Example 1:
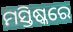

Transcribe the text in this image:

ମସ୍ତିଷ୍କରେ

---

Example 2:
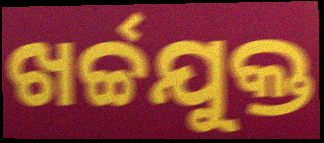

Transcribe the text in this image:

ଖର୍ଚ୍ଚଯୁକ୍ତ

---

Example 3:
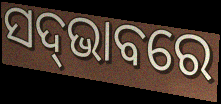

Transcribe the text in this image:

ସଦ୍‌ଭାବରେ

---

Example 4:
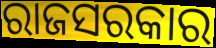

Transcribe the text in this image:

ରାଜସରକାର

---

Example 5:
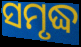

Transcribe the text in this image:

ସମୃଦ୍ଧ